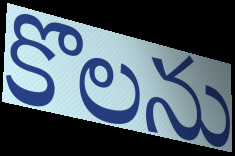
కొలను